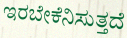
ಇರಬೇಕೆನಿಸುತ್ತದೆ